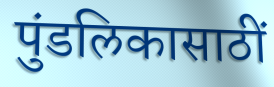
पुंडलिकासाठीं